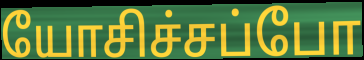
யோசிச்சப்போ